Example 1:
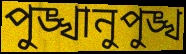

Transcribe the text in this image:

পুঙ্খানুপুঙ্খ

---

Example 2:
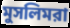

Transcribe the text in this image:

মুসলিমরা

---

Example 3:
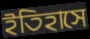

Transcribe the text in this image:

ইতিহাসে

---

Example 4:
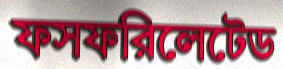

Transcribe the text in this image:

ফসফরিলেটেড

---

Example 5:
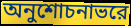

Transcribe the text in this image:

অনুশোচনাভরে